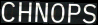
CHNOPS